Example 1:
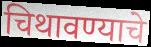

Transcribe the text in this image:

चिथावण्याचे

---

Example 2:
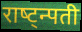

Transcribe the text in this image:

राष्ट्न्पती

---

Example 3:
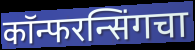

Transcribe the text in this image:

कॉन्फरन्सिंगचा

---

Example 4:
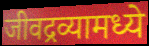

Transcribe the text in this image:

जीवद्रव्यामध्ये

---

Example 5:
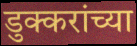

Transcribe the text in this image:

डुक्करांच्या